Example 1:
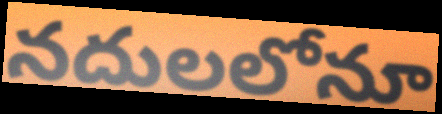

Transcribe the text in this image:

నదులలోనూ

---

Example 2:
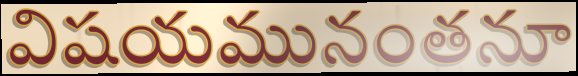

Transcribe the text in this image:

విషయమునంతనూ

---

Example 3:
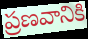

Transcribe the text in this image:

ప్రణవానికి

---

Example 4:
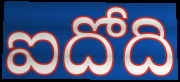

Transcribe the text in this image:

ఐదోది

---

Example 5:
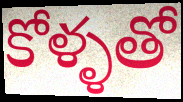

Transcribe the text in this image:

కోళ్ళతో